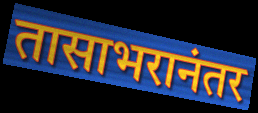
तासाभरानंतर